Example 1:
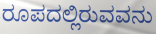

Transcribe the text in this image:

ರೂಪದಲ್ಲಿರುವವನು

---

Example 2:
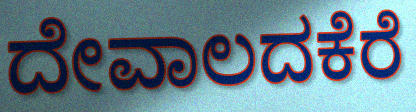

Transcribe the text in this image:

ದೇವಾಲದಕೆರೆ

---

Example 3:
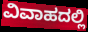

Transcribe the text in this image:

ವಿವಾಹದಲ್ಲಿ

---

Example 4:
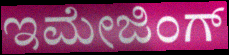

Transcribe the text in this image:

ಇಮೇಜಿಂಗ್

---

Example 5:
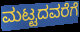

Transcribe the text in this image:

ಮಟ್ಟದವರೆಗೆ